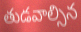
తుడవాల్సిన